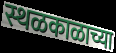
स्थळकाळाच्या